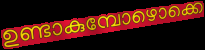
ഉണ്ടാകുമ്പോഴൊക്കെ